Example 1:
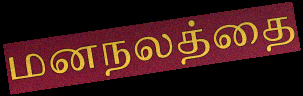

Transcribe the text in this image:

மனநலத்தை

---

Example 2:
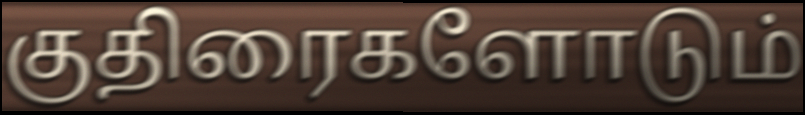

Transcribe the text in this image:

குதிரைகளோடும்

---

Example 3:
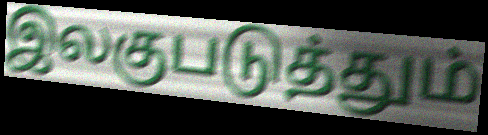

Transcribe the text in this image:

இலகுபடுத்தும்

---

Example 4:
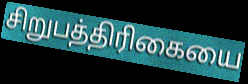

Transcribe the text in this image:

சிறுபத்திரிகையை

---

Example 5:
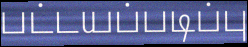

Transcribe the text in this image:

பட்டயப்படிப்பு